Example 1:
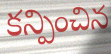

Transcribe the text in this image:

కన్పించిన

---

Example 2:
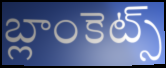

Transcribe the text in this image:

బ్లాంకెట్స్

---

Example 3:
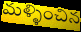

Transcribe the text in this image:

మళ్ళించిన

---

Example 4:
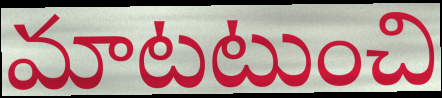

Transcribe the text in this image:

మాటటుంచి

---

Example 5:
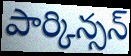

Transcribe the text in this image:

పార్కిన్సన్